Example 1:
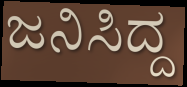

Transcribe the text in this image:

ಜನಿಸಿದ್ದ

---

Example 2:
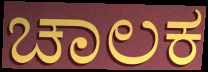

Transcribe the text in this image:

ಚಾಲಕ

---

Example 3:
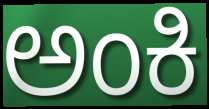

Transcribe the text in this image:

ಅಂಕಿ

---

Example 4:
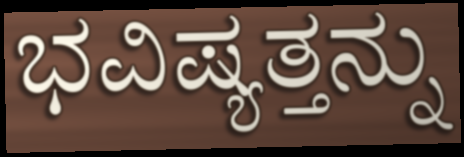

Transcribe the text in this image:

ಭವಿಷ್ಯತ್ತನ್ನು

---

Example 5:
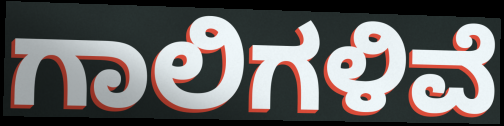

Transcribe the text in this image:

ಗಾಲಿಗಳಿವೆ